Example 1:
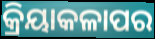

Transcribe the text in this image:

କ୍ରିୟାକଳାପର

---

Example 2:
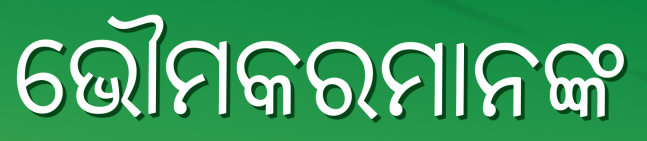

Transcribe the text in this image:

ଭୌମକରମାନଙ୍କ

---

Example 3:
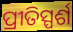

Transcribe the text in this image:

ପ୍ରୀତିସ୍ପର୍ଶ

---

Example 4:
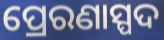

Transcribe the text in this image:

ପ୍ରେରଣାସ୍ପଦ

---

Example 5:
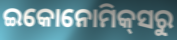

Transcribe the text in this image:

ଇକୋନୋମିକ୍‌ସରୁ